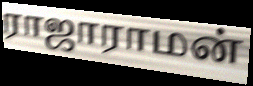
ராஜாராமன்